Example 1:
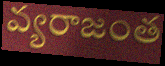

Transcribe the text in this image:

వ్యరాజంత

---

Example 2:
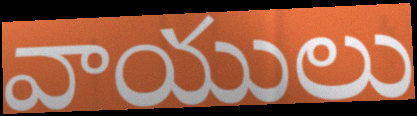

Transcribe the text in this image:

వాయులు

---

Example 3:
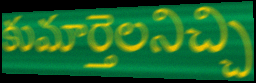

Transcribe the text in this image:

కుమార్తెలనిచ్చి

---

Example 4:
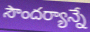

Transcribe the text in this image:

సౌందర్యాన్నే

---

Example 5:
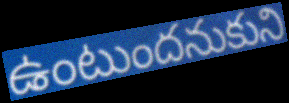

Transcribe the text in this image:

ఉంటుందనుకుని